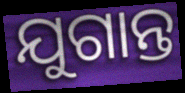
ଯୁଗାନ୍ତ